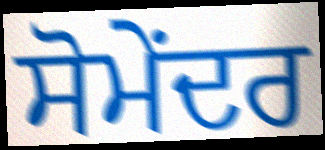
ਸੋਮੇਂਦਰ